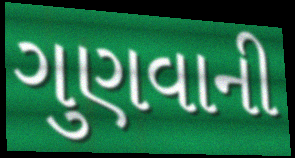
ગુણવાની